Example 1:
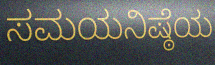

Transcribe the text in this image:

ಸಮಯನಿಷ್ಠೆಯ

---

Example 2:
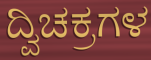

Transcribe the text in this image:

ದ್ವಿಚಕ್ರಗಳ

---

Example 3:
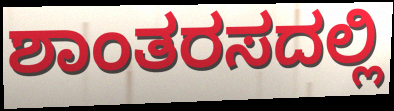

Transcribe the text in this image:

ಶಾಂತರಸದಲ್ಲಿ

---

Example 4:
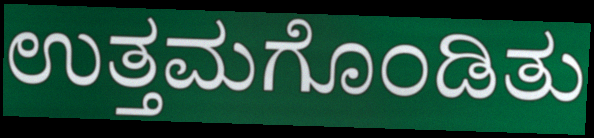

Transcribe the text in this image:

ಉತ್ತಮಗೊಂಡಿತು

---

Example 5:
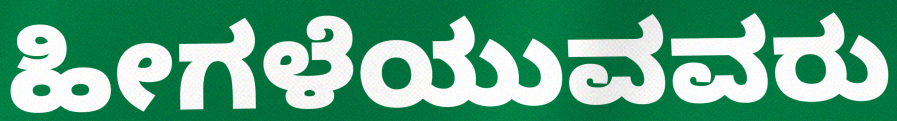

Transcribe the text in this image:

ಹೀಗಳೆಯುವವರು